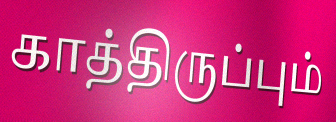
காத்திருப்பும்